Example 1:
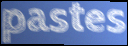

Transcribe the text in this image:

pastes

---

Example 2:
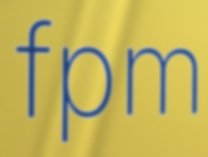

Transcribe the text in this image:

fpm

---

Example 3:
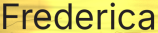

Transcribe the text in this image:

Frederica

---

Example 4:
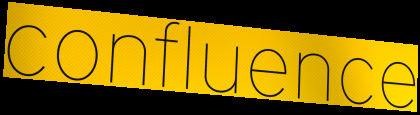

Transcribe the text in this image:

confluence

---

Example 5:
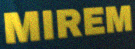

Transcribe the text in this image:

MIREM